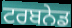
ਟਰਬਨੇਡ